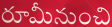
రూమీనుంచి